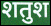
शतुश